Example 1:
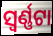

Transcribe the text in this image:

ସ୍ୱର୍ଣ୍ଣଟା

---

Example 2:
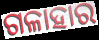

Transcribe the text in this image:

ଗଳାହାର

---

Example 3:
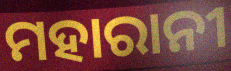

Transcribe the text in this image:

ମହାରାନୀ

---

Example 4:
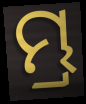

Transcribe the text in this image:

ମ୍ଭ୍ର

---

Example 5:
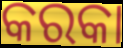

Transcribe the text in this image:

କରକା